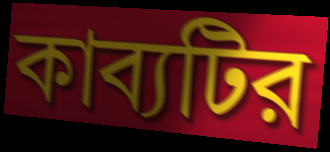
কাব্যটির